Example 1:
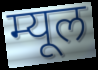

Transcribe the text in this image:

म्यूल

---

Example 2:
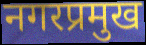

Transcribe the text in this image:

नगरप्रमुख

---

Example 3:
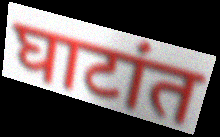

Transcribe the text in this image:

घाटांत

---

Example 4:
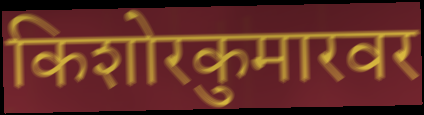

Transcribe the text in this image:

किशोरकुमारवर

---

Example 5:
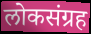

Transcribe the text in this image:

लोकसंग्रह